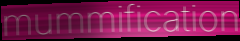
mummification